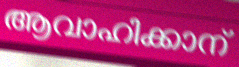
ആവാഹിക്കാന്